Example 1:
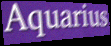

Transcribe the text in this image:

Aquarius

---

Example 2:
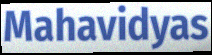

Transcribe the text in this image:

Mahavidyas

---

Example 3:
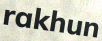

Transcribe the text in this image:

rakhun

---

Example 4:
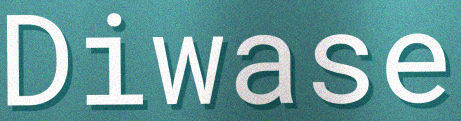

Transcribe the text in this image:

Diwase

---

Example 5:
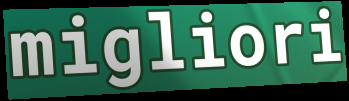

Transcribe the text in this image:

migliori